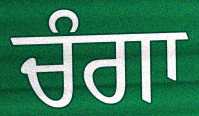
ਚੰਗਾ